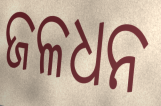
ଜଳଧନ